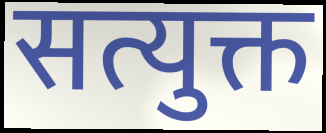
सत्युक्त